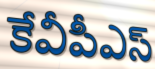
కేవీపీఎస్